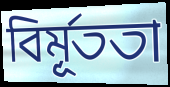
বির্মূততা